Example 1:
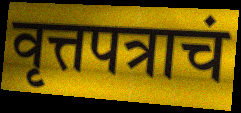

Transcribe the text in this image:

वृत्तपत्राचं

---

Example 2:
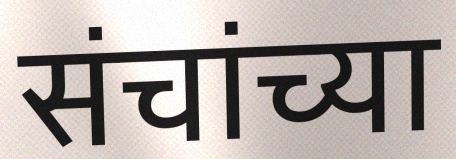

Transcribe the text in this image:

संचांच्या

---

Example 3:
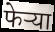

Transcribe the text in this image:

फेऱ्या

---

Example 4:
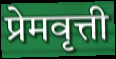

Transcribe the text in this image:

प्रेमवृत्ती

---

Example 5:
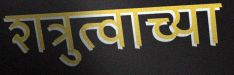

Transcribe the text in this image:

शत्रुत्वाच्या